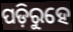
ପଡ଼ିରୁହେ